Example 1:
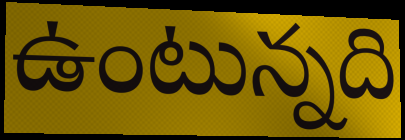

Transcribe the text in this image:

ఉంటున్నది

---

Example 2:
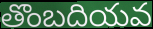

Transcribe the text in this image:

తొంబదియవ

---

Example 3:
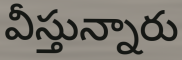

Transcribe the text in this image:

వీస్తున్నారు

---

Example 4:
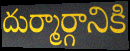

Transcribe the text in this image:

దుర్మార్గానికి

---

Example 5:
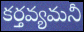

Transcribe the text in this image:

కర్తవ్యమనీ